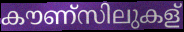
കൗണ്സിലുകള്